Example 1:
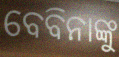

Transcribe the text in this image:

ବେବିନାଙ୍କୁ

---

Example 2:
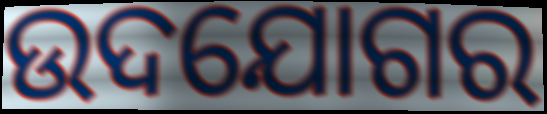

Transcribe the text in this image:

ଉଦଯୋଗର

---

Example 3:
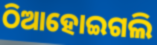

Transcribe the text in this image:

ଠିଆହୋଇଗଲି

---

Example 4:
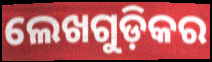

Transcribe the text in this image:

ଲେଖଗୁଡ଼ିକର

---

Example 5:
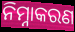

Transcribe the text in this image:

ନିମ୍ନାକରଣ